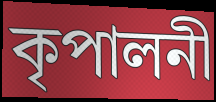
কৃপালনী